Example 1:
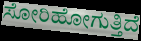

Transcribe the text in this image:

ಸೋರಿಹೋಗುತ್ತಿದೆ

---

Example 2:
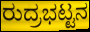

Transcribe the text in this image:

ರುದ್ರಭಟ್ಟನ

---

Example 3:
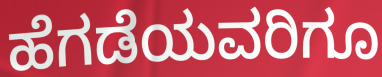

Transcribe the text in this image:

ಹೆಗಡೆಯವರಿಗೂ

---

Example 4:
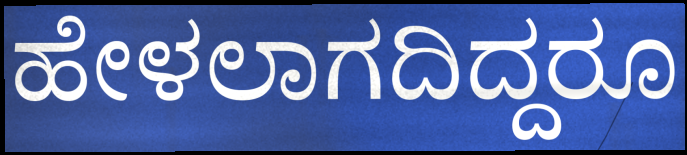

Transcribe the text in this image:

ಹೇಳಲಾಗದಿದ್ದರೂ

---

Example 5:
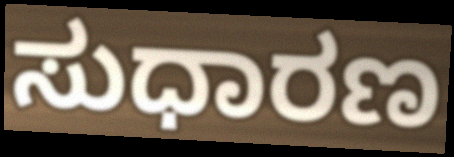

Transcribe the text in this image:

ಸುಧಾರಣ